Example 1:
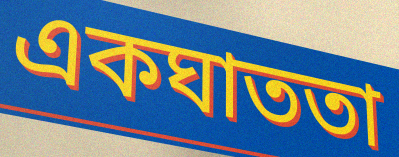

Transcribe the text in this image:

একঘাততা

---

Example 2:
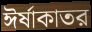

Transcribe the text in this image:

ঈর্ষাকাতর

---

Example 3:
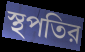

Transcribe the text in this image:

স্থপতির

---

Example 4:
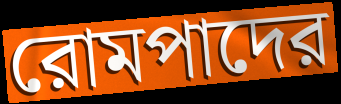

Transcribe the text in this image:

রোমপাদের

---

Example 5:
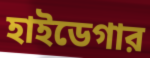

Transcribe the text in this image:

হাইডেগার